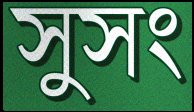
সুসং